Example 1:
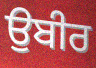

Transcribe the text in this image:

ਉਬੀਰ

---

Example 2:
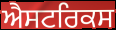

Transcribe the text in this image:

ਐਸਟਰਿਕਸ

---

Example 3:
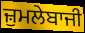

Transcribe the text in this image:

ਜ਼ੁਮਲੇਬਾਜੀ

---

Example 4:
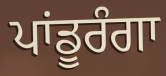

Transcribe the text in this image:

ਪਾਂਡੂਰੰਗਾ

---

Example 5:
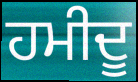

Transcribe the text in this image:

ਹਮੀਦੂ